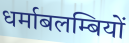
धर्माबलम्बियों